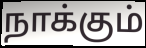
நாக்கும்